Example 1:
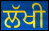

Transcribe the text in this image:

ਲੱਖੀ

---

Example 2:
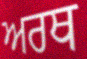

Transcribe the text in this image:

ਅਰਥ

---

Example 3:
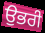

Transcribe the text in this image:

ਉਭਰੀ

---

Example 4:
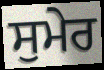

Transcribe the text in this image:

ਸੁਮੇਰ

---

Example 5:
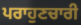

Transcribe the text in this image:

ਪਰਾਹੁਣਚਾਰੀ